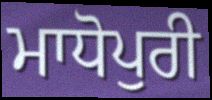
ਮਾਧੋਪੁਰੀ